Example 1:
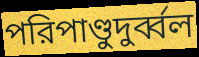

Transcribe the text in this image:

পরিপাণ্ডুদুর্ব্বল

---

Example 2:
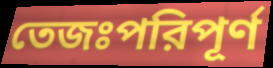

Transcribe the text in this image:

তেজঃপরিপূর্ণ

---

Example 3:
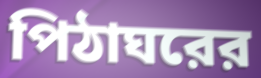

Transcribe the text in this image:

পিঠাঘরের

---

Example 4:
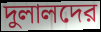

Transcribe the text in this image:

দুলালদের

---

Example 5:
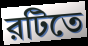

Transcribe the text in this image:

রটিতে